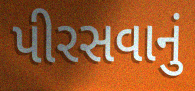
પીરસવાનું